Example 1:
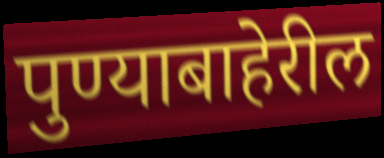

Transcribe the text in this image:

पुण्याबाहेरील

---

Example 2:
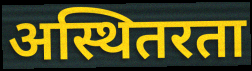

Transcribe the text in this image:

अस्थितरता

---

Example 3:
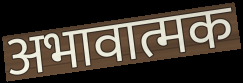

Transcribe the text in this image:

अभावात्मक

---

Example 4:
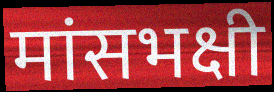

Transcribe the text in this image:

मांसभक्षी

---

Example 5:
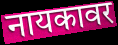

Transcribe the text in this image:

नायकावर